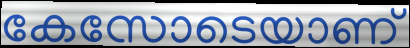
കേസോടെയാണ്